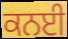
ਕਨਈ